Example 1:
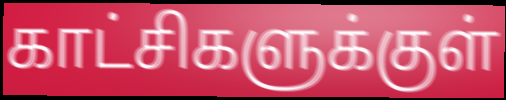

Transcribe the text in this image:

காட்சிகளுக்குள்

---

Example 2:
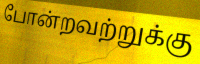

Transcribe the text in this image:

போன்றவற்றுக்கு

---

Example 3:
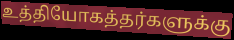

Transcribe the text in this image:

உத்தியோகத்தர்களுக்கு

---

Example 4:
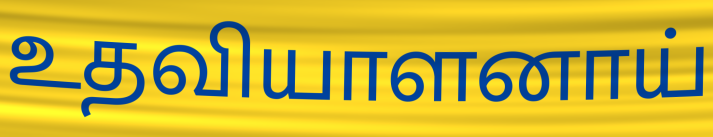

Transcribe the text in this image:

உதவியாளனாய்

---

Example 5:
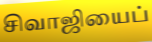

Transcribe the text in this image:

சிவாஜியைப்